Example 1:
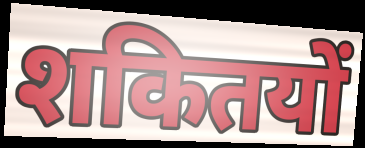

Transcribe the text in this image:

शकितयों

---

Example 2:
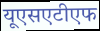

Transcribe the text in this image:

यूएसएटीएफ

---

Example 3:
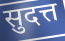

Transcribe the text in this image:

सुदत्त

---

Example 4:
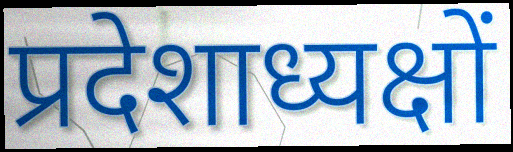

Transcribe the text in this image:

प्रदेशाध्यक्षों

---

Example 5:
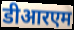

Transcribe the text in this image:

डीआरएम